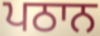
ਪਠਾਨ